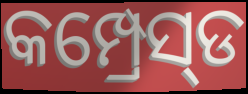
କମ୍ପ୍ରେସ୍‌ଡ